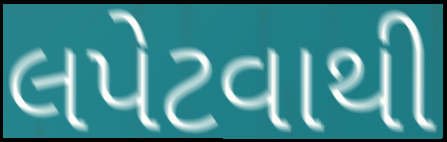
લપેટવાથી